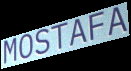
MOSTAFA